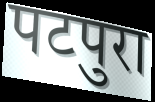
पटपुरा